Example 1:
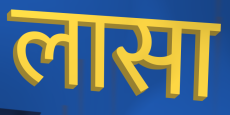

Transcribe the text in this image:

लासा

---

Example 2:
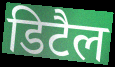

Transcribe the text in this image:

डिटैल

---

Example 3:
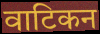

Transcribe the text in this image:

वाटिकन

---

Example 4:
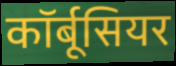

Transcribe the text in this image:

कॉर्बूसियर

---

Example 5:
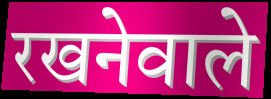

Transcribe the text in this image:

रखनेवाले